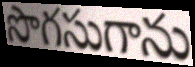
సొగసుగాను